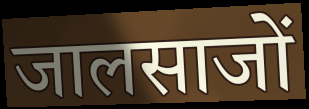
जालसाजों